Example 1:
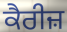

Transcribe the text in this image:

ਕੈਰੀਜ਼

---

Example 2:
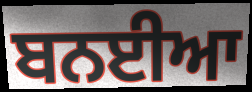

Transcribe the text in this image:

ਬਨਈਆ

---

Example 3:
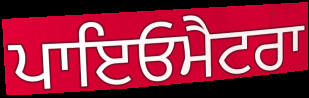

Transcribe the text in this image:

ਪਾਇਓਮੈਟਰਾ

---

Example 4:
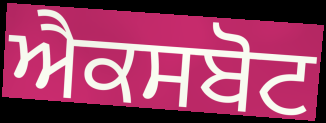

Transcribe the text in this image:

ਐਕਸਬੋਟ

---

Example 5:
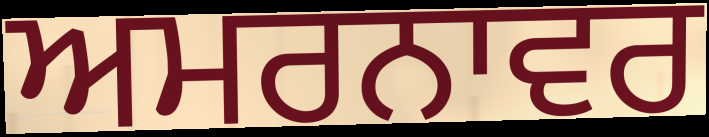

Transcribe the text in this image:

ਅਮਰਨਾਵਰ